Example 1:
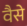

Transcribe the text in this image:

वैसे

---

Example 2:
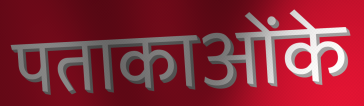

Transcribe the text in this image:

पताकाओंके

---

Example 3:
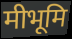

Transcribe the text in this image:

मीभूमि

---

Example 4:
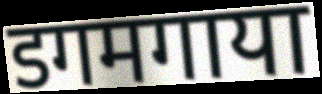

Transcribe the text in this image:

डगमगाया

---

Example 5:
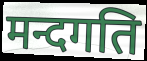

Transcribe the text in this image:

मन्दगति